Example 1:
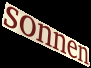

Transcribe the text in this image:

sonnen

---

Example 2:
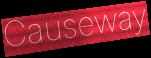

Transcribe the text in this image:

Causeway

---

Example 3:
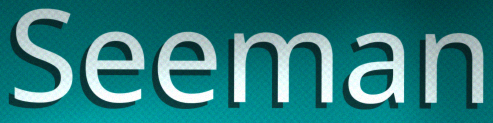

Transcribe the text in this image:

Seeman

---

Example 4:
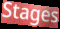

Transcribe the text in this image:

Stages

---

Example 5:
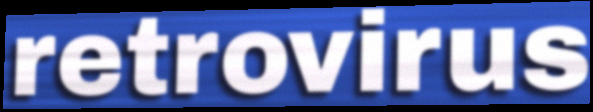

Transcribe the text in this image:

retrovirus